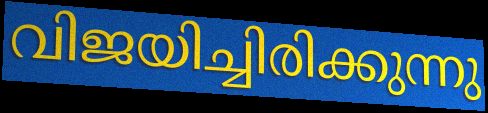
വിജയിച്ചിരിക്കുന്നു